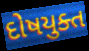
દોષયુક્ત